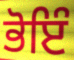
ਭੋਇੰ